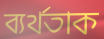
ব্যৰ্থতাক